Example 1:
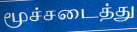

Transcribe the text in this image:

மூச்சடைத்து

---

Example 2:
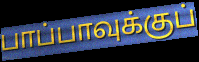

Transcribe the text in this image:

பாப்பாவுக்குப்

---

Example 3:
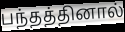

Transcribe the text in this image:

பந்தத்தினால்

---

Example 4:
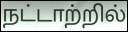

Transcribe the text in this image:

நட்டாற்றில்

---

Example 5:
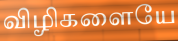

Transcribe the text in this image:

விழிகளையே